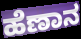
ಹೆಣಾನ